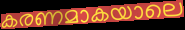
കരണമാകയാലെ